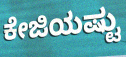
ಕೇಜಿಯಷ್ಟು